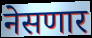
नेसणार